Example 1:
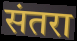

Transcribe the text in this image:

संतरा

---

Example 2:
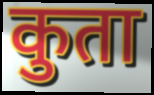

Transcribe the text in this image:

कुता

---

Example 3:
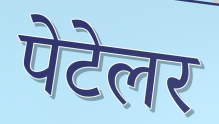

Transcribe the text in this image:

पेटेलर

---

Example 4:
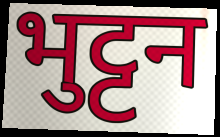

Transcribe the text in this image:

भुट्टन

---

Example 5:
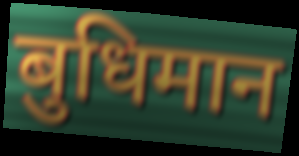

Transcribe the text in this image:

बुधिमान